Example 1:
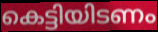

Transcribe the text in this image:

കെട്ടിയിടണം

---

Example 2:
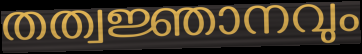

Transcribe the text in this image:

തത്വജ്ഞാനവും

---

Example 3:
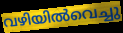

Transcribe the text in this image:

വഴിയിൽവെച്ചു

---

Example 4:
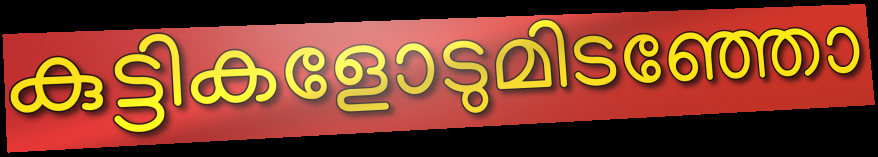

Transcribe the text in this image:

കുട്ടികളോടുമിടഞ്ഞോ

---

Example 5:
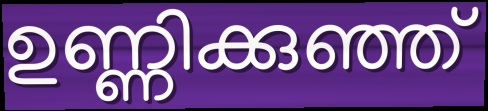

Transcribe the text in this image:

ഉണ്ണിക്കുഞ്ഞ്